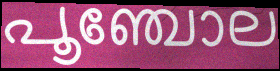
പൂഞ്ചോല